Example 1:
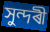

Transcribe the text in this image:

সুন্দৰী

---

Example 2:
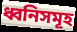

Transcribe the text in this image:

ধ্বনিসমূহ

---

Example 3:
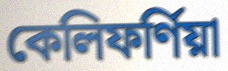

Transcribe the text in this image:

কেলিফৰ্ণিয়া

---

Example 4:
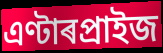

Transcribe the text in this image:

এণ্টাৰপ্ৰাইজ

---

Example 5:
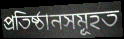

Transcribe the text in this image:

প্ৰতিষ্ঠানসমূহত